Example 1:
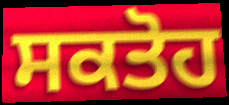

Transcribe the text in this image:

ਸਕਤੋਹ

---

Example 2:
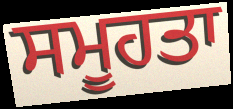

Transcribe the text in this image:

ਸਮੂਹਤਾ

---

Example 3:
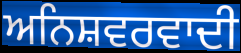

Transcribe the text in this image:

ਅਨਿਸ਼ਵਰਵਾਦੀ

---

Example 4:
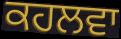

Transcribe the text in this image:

ਕਹਲਵਾ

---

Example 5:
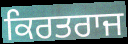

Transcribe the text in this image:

ਕਿਰਤਰਾਜ